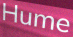
Hume